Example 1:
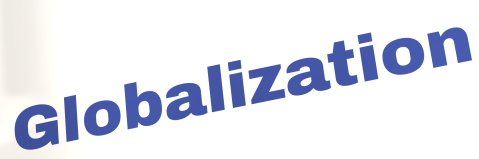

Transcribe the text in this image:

Globalization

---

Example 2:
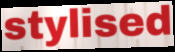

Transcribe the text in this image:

stylised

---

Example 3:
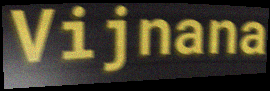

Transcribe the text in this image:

Vijnana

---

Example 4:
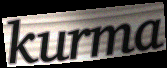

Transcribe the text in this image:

kurma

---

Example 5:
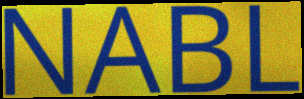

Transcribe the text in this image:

NABL